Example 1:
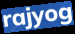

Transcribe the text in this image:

rajyog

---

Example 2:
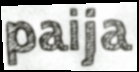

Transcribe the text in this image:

paija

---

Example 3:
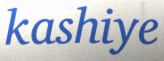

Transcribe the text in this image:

kashiye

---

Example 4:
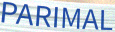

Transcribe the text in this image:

PARIMAL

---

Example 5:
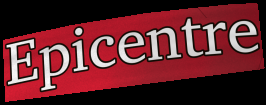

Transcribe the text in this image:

Epicentre